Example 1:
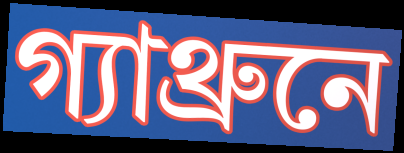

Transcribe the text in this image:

গ্যাথ্রুনে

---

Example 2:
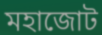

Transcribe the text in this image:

মহাজোট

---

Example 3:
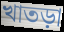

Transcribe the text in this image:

খাতড়া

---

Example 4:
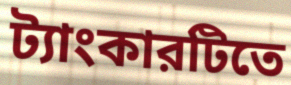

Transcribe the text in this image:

ট্যাংকারটিতে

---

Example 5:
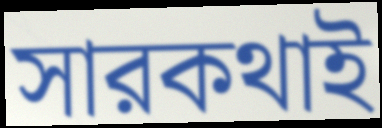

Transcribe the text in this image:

সারকথাই